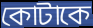
কোটাকে